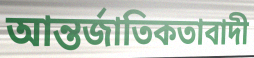
আন্তর্জাতিকতাবাদী